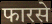
फारसे